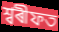
শ্বৰীফত